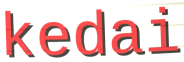
kedai